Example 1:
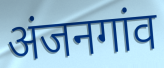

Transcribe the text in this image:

अंजनगांव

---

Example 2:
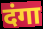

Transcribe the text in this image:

दंगा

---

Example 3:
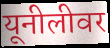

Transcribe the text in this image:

यूनीलीवर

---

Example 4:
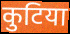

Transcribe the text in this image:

कुटिया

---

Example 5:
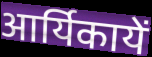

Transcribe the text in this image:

आर्यिकायें